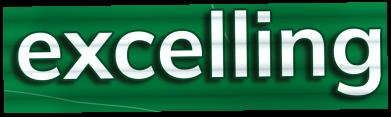
excelling